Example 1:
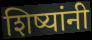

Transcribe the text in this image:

शिष्यांनी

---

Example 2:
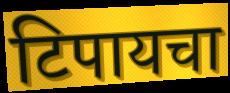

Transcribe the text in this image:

टिपायचा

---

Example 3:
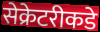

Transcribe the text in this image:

सेक्रेटरीकडे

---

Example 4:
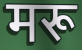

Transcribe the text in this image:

मरू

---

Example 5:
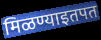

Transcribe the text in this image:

मिळण्याइतपत